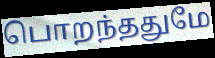
பொறந்ததுமே